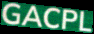
GACPL